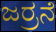
ಜರ್ರನೆ